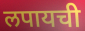
लपायची